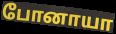
போனாயா